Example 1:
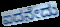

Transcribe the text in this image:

ಐದನೇದು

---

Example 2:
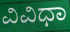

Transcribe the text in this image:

ವಿವಿಧಾ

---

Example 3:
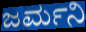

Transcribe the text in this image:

ಜರ್ಮನಿ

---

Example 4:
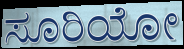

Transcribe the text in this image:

ಸೂರಿಯೋ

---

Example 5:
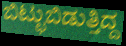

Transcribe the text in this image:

ಬಿಟ್ಟುಬಿಡುತ್ತಿದ್ದ